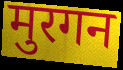
मुरगन